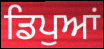
ਡਿਪੁਆਂ